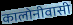
कालोनीवासी